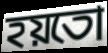
হয়তো